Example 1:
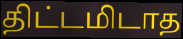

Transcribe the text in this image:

திட்டமிடாத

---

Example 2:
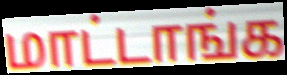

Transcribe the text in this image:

மாட்டாங்க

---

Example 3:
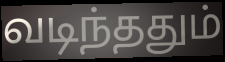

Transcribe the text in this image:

வடிந்ததும்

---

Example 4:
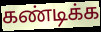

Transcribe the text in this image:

கண்டிக்க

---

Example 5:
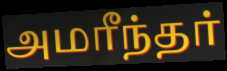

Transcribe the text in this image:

அமரீந்தர்